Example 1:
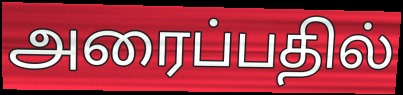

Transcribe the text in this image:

அரைப்பதில்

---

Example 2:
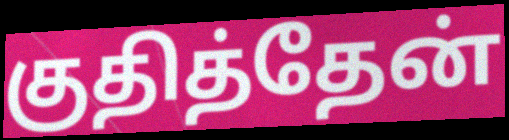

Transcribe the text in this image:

குதித்தேன்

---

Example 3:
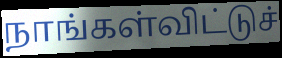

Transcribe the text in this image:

நாங்கள்விட்டுச்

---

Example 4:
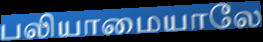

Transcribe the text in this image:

பலியாமையாலே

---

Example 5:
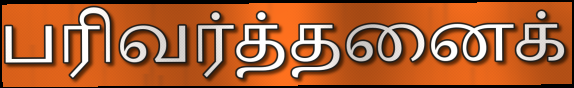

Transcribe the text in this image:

பரிவர்த்தனைக்